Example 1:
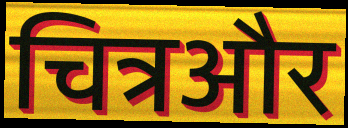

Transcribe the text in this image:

चित्रऔर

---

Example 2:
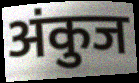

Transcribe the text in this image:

अंकुज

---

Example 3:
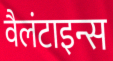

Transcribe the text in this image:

वैलंटाइन्स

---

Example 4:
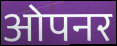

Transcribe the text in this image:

ओपनर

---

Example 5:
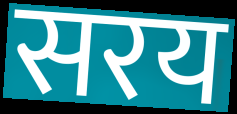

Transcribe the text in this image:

सरय